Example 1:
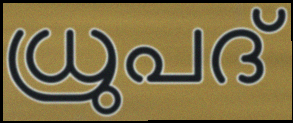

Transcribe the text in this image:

ധ്രുപദ്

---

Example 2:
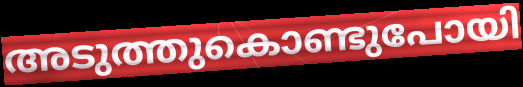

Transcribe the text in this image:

അടുത്തുകൊണ്ടുപോയി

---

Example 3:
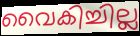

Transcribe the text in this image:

വൈകിച്ചില്ല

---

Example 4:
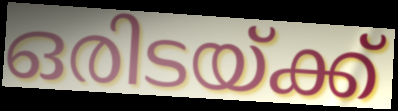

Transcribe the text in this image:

ഒരിടയ്ക്ക്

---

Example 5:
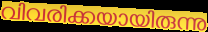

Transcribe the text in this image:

വിവരിക്കയായിരുന്നു